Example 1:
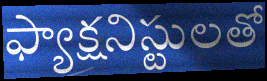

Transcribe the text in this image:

ఫ్యాక్షనిస్టులతో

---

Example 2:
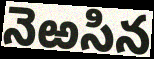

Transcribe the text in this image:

నెఱసిన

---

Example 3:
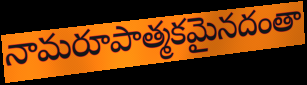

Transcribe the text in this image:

నామరూపాత్మకమైనదంతా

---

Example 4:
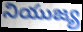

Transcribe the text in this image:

నియుజ్య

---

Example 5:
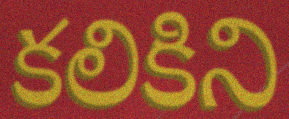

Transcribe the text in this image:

కలికిని